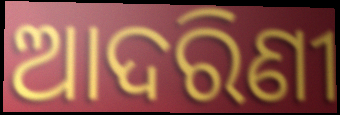
ଆଦରିଣୀ